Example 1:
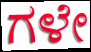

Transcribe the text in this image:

ಗಳೇ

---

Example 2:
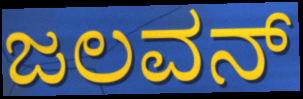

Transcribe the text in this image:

ಜಲವನ್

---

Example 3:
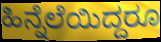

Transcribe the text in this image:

ಹಿನ್ನೆಲೆಯಿದ್ದರೂ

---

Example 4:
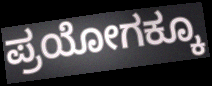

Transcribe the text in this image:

ಪ್ರಯೋಗಕ್ಕೂ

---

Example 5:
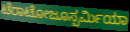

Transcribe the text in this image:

ಟೆರಾಟೋಜೂಸ್ಪರ್ಮಿಯಾ